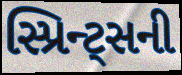
સ્પ્રિન્ટ્સની